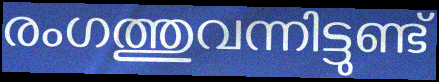
രംഗത്തുവന്നിട്ടുണ്ട്